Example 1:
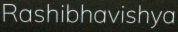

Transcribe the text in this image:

Rashibhavishya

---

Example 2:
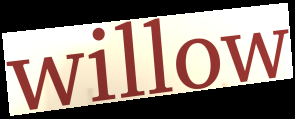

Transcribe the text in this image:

willow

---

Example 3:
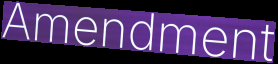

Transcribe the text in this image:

Amendment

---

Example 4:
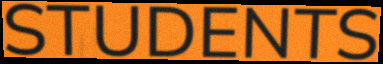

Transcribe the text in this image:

STUDENTS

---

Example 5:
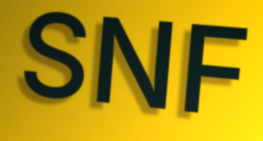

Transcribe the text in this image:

SNF